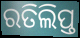
ରତିଲିପ୍ତ